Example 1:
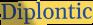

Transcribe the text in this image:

Diplontic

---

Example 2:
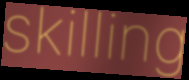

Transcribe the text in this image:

skilling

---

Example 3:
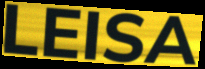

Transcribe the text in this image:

LEISA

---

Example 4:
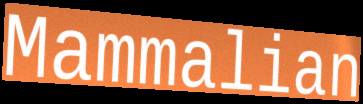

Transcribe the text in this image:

Mammalian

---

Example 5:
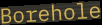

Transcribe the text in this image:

Borehole